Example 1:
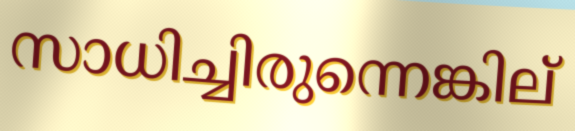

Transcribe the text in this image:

സാധിച്ചിരുന്നെങ്കില്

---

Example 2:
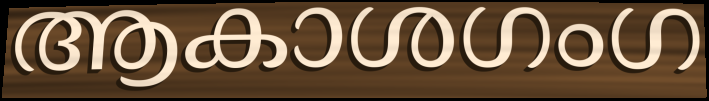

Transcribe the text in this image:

ആകാശഗംഗ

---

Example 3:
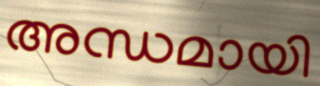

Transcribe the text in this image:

അന്ധമായി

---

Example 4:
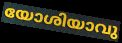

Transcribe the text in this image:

യോശിയാവു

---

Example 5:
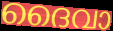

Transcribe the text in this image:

ദൈവാ